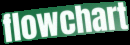
flowchart